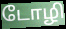
டோழி